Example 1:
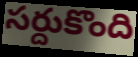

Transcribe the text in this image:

సర్దుకొంది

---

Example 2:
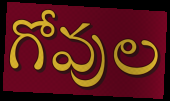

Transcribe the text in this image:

గోవుల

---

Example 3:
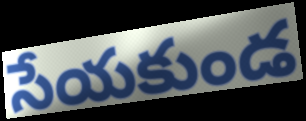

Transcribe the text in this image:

సేయకుండ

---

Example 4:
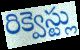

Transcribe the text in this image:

రిక్వెస్ట్లు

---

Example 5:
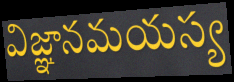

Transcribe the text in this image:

విజ్ఞానమయస్య